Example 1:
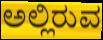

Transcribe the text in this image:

ಅಲ್ಲಿರುವ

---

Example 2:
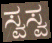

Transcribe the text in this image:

ಸ್ವಸ್ವ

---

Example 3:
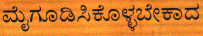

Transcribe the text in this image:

ಮೈಗೂಡಿಸಿಕೊಳ್ಳಬೇಕಾದ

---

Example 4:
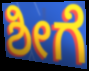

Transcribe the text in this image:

ಶೀಗೆ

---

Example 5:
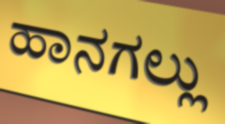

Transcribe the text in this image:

ಹಾನಗಲ್ಲು